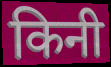
किनी